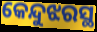
କେନ୍ଦୁଝରସ୍ଥ